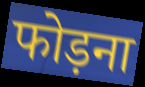
फोड़ना